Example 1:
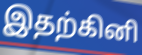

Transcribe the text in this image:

இதற்கினி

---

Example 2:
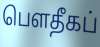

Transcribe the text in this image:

பௌதீகப்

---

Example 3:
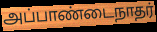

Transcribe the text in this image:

அப்பாண்டைநாதர்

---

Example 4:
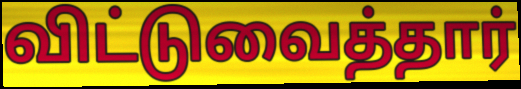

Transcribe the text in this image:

விட்டுவைத்தார்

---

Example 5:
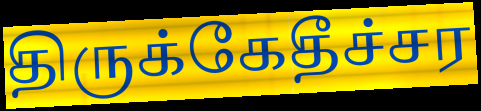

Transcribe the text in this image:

திருக்கேதீச்சர